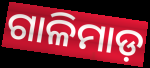
ଗାଳିମାଡ଼